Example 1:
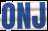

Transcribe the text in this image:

ONJ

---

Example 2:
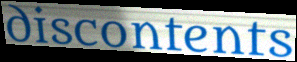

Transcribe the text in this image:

discontents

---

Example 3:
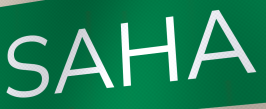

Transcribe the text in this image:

SAHA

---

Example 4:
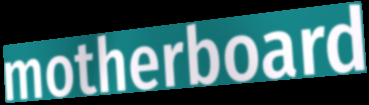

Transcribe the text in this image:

motherboard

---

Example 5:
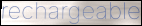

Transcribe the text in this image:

rechargeable